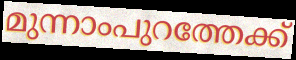
മുന്നാംപുറത്തേക്ക്